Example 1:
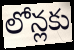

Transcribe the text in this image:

లోన్లకు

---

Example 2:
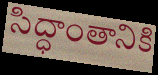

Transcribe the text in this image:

సిద్ధాంతానికి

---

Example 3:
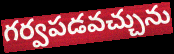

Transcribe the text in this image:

గర్వపడవచ్చును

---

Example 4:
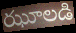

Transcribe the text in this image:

ఝూలడి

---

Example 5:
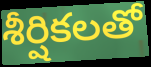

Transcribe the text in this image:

శీర్షికలతో